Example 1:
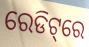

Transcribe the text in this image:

ରେଡିଟ୍‌ରେ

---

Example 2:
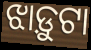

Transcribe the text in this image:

ଝାଡ଼ୁଟା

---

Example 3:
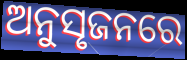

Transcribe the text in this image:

ଅନୁସୃଜନରେ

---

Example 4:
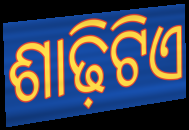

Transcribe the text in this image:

ଶାଢ଼ିଟିଏ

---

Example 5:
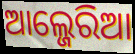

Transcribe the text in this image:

ଆଲ୍ଜେରିଆ